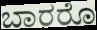
ಬಾರರೊ